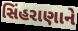
સિંહરાણાને